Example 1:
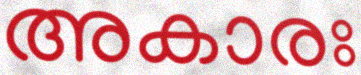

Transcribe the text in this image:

അകാരഃ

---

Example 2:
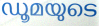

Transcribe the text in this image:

ഡൂമയുടെ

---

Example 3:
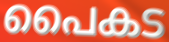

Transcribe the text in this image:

പൈകട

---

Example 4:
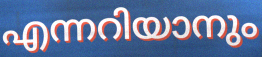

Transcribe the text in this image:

എന്നറിയാനും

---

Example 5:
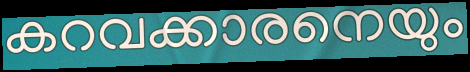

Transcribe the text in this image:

കറവക്കാരനെയും